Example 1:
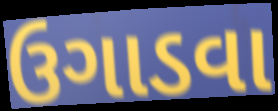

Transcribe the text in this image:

ઉગાડવા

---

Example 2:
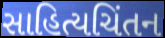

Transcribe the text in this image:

સાહિત્યચિંતન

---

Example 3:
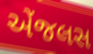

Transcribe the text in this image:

એંજલસ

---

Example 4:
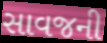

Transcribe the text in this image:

સાવજની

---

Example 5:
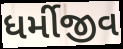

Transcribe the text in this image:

ધર્મીજીવ